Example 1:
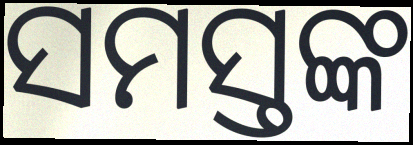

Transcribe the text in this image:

ସମସ୍ତଙ୍କ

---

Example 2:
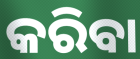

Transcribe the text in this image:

କରିବା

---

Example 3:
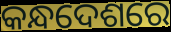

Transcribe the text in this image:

କନ୍ଧଦେଶରେ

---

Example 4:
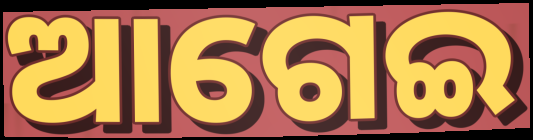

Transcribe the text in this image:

ଆଗେଇ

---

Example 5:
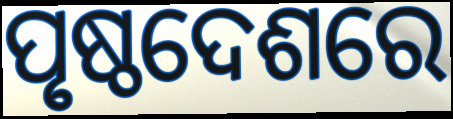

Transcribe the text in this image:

ପୃଷ୍ଠଦେଶରେ